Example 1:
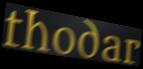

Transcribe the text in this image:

thodar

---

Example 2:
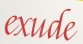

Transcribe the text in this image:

exude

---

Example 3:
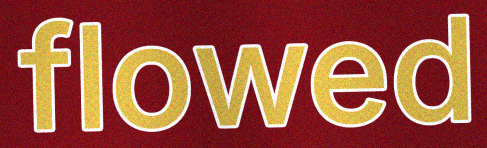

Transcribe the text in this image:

flowed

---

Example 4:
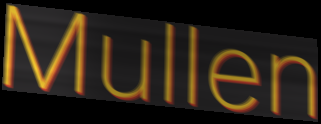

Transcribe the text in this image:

Mullen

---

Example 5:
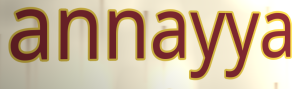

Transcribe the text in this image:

annayya